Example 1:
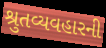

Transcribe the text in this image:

શ્રુતવ્યવહારની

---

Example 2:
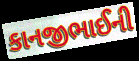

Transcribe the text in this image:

કાનજીભાઈની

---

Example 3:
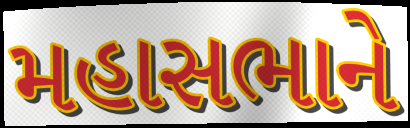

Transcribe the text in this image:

મહાસભાને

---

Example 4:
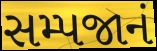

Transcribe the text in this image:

સમ્પજાનં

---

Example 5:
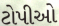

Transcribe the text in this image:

ટોપીઓ